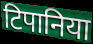
टिपानिया